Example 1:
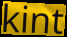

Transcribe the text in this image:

kint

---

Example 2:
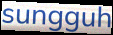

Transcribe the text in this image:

sungguh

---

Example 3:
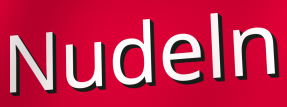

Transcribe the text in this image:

Nudeln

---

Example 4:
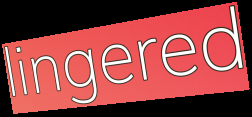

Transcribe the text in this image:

lingered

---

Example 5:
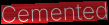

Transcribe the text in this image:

Cemented